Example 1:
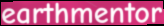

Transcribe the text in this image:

earthmentor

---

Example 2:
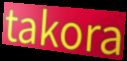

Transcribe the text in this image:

takora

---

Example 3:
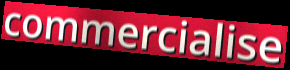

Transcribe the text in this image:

commercialise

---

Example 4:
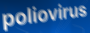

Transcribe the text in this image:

poliovirus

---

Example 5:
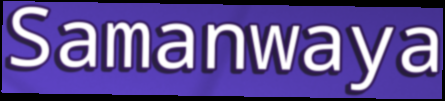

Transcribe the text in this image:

Samanwaya